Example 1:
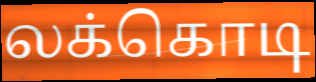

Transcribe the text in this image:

லக்கொடி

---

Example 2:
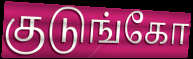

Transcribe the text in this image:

குடுங்கோ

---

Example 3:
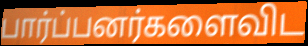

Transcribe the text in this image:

பார்ப்பனர்களைவிட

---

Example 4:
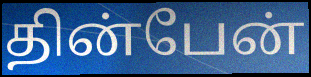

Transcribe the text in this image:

தின்பேன்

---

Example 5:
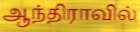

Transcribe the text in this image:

ஆந்திராவில்